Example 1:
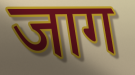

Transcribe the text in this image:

जाग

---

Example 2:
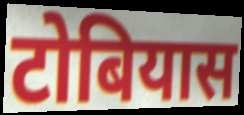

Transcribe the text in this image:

टोबियास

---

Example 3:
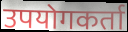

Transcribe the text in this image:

उपयोगकर्ता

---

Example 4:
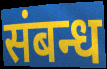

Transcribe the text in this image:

संबन्ध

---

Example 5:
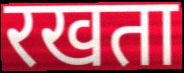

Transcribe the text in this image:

रखता